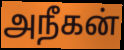
அநீகன்